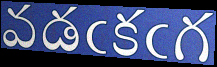
వడఁకఁగ